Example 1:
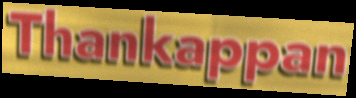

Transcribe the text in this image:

Thankappan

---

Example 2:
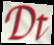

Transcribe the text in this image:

Dt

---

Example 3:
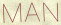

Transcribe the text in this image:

MAN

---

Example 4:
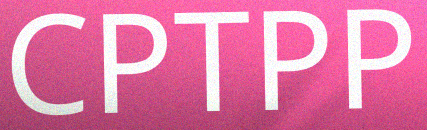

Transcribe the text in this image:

CPTPP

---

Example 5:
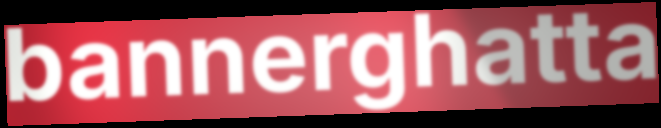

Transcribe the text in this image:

bannerghatta